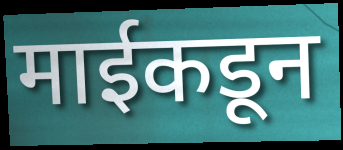
माईकडून